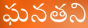
ఘనతని